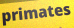
primates